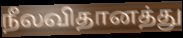
நீலவிதானத்து